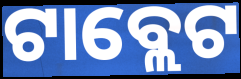
ଟାବ୍ଲେଟ